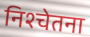
निश्चेतना